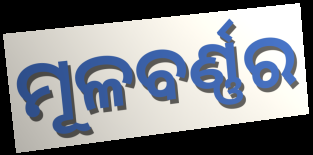
ମୂଳବର୍ଣ୍ଣର